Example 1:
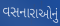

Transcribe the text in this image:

વસનારાઓનું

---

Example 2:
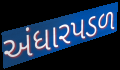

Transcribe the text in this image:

અંધારપડળ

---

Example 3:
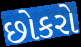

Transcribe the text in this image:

છોકરો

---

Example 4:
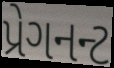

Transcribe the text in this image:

પ્રેગનન્ટ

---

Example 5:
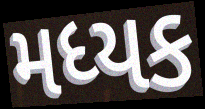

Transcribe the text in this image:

મધ્યક